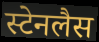
स्टेनलैस